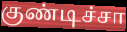
குண்டிச்சா